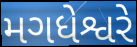
મગધેશ્વરે